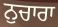
ਨੁਚਾਰਾ